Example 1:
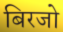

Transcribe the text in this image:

बिरजो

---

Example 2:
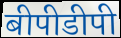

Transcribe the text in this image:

बीपीडीपी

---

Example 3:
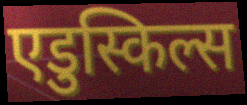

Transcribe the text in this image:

एडुस्किल्स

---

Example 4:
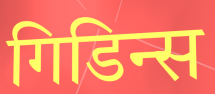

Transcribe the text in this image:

गिडिन्स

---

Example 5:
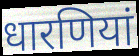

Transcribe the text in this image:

धारणियां